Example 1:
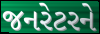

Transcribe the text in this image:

જનરેટરને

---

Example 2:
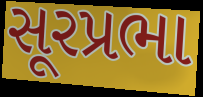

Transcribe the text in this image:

સૂરપ્રભા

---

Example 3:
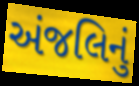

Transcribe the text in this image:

અંજલિનું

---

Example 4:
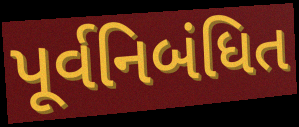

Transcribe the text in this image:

પૂર્વનિબંધિત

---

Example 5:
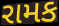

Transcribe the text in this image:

રામક